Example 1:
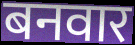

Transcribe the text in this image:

बनवार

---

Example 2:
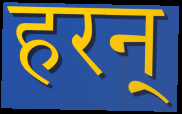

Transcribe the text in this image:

हरन्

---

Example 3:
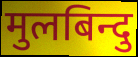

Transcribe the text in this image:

मुलबिन्दु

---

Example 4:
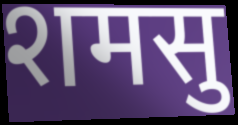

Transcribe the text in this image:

शमसु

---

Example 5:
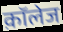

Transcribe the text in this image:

क़ॉलेज